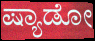
ಷ್ಯಾಡೋ